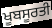
ਖੂਬਸੂਰਤੀ